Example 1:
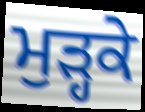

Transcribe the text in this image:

ਮੁੜ੍ਹਕੇ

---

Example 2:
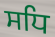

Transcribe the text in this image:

ਸਧਿ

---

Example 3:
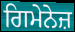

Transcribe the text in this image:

ਗਿਮੇਨੇਜ਼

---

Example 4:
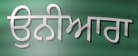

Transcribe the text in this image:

ਉਨੀਆਰਾ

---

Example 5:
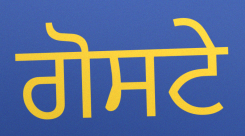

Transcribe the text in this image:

ਗੋਸਟੇ